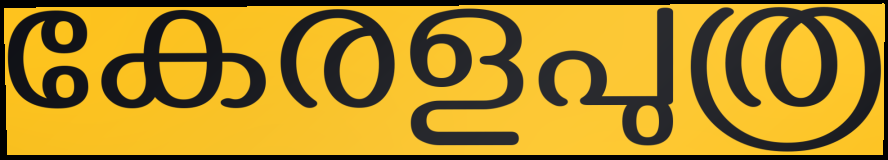
കേരളപുത്ര